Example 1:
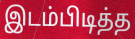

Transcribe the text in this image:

இடம்பிடித்த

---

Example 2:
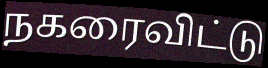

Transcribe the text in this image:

நகரைவிட்டு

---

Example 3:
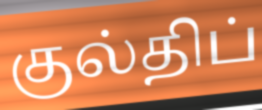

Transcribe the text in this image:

குல்திப்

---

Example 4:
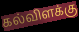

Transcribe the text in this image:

கல்விளக்கு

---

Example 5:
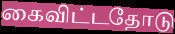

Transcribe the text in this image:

கைவிட்டதோடு